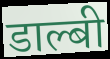
डाल्बी